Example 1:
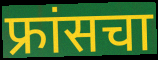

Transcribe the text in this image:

फ्रांसचा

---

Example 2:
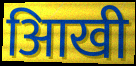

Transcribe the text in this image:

आिखी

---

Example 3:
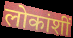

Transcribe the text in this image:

लोकांशीं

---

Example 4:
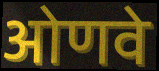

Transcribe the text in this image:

ओणवे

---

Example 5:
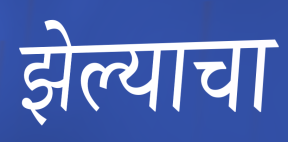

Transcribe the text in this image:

झेल्याचा